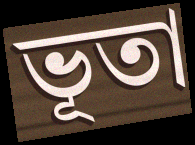
ভূতা